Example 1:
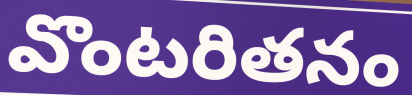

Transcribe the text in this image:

వొంటరితనం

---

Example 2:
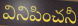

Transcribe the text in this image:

వినిపించనీ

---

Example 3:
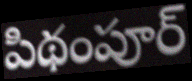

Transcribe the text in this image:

పిథంపూర్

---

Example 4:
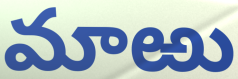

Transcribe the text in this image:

మాఱు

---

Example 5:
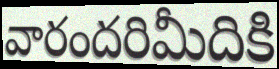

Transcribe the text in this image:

వారందరిమీదికి